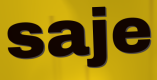
saje